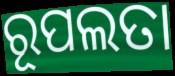
ରୂପଲତା